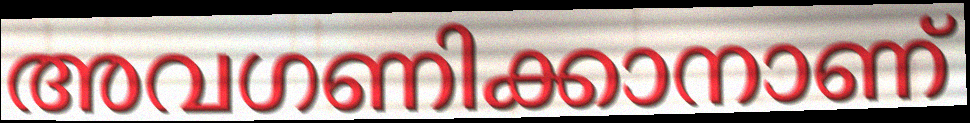
അവഗണിക്കാനാണ്